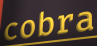
cobra